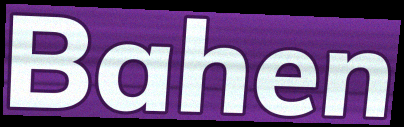
Bahen